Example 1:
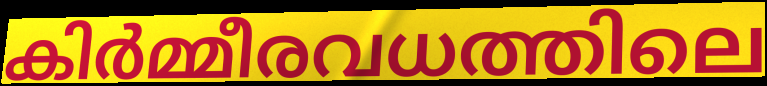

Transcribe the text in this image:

കിർമ്മീരവധത്തിലെ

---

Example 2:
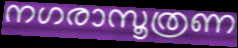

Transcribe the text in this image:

നഗരാസൂത്രണ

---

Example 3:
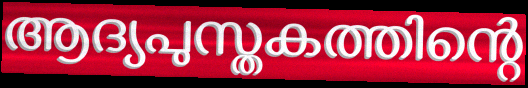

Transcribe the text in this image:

ആദ്യപുസ്തകത്തിന്റെ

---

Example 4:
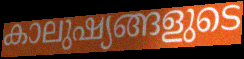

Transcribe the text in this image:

കാലുഷ്യങ്ങളുടെ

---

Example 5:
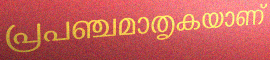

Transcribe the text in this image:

പ്രപഞ്ചമാതൃകയാണ്